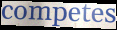
competes